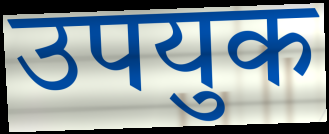
उपयुक